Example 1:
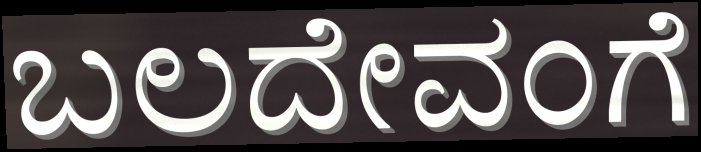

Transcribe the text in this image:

ಬಲದೇವಂಗೆ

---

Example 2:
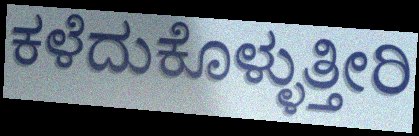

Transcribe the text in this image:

ಕಳೆದುಕೊಳ್ಳುತ್ತೀರಿ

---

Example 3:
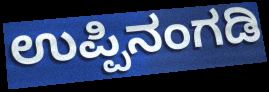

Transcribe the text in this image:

ಉಪ್ಪಿನಂಗಡಿ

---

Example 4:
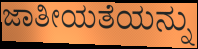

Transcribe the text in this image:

ಜಾತೀಯತೆಯನ್ನು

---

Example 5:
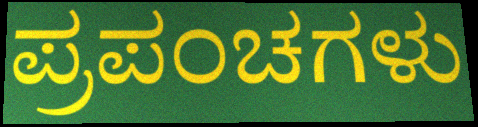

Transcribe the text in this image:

ಪ್ರಪಂಚಗಳು